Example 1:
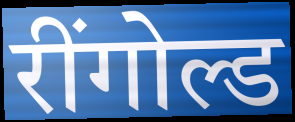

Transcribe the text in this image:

रींगोल्ड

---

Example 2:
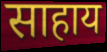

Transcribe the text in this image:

साहाय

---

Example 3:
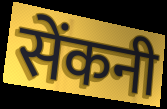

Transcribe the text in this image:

सेंकनी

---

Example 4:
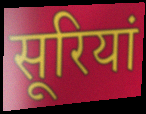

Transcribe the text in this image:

सूरियां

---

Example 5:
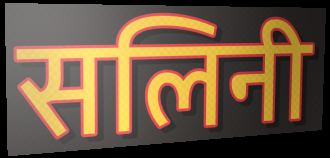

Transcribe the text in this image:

सलिनी